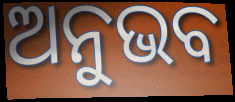
ଅନୁଭବ